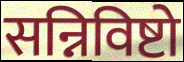
सन्निविष्टो